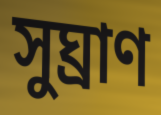
সুঘ্রাণ